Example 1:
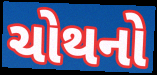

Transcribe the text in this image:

ચોથનો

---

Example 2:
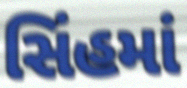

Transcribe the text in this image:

સિંહમાં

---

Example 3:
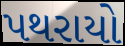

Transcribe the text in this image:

પથરાયો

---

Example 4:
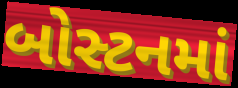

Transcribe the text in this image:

બોસ્ટનમાં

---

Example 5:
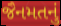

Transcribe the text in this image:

જૈનમતનું